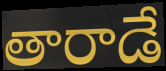
తారాడే